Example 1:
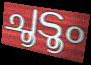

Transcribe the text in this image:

ചൂടൂം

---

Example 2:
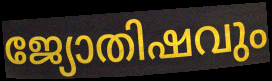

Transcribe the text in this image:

ജ്യോതിഷവും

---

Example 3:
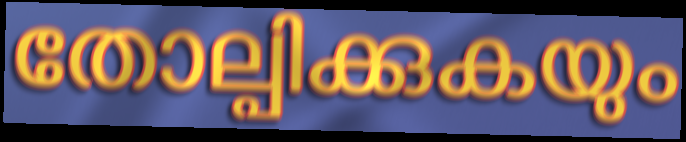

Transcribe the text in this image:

തോല്പിക്കുകയും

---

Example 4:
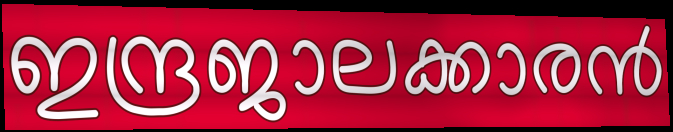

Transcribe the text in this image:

ഇന്ദ്രജാലക്കാരൻ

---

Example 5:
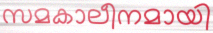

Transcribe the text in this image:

സമകാലീനമായി